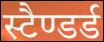
स्टैण्डर्ड